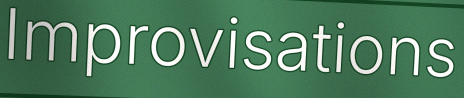
Improvisations